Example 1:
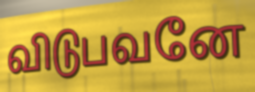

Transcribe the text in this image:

விடுபவனே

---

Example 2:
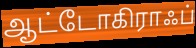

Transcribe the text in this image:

ஆட்டோகிராஃப்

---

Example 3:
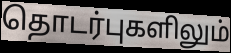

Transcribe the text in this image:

தொடர்புகளிலும்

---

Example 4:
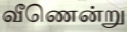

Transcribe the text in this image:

வீணென்று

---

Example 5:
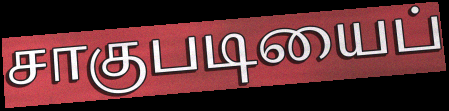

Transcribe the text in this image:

சாகுபடியைப்